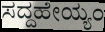
ಸದ್ದಹೇಯ್ಯಂ